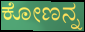
ಕೋಣನ್ನ